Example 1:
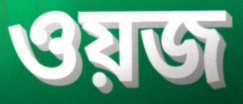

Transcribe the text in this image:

ওয়জ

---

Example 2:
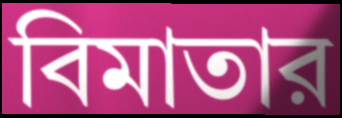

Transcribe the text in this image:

বিমাতার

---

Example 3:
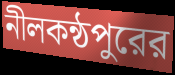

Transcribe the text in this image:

নীলকন্ঠপুরের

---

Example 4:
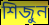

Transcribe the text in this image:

শিজুন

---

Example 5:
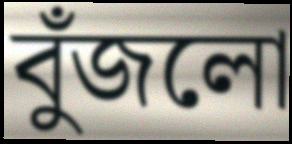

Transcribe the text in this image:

বুঁজলো